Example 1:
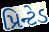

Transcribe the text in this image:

પ્રિન્ટેડ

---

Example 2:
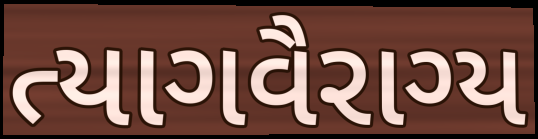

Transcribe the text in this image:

ત્યાગવૈરાગ્ય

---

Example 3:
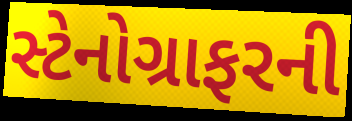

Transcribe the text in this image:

સ્ટેનોગ્રાફરની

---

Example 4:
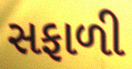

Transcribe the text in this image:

સફાળી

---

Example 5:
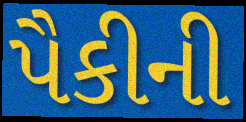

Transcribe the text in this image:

પૈકીની